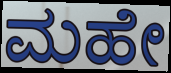
ಮಹೇ